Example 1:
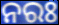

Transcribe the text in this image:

ନରଃ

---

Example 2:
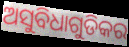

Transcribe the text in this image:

ଅସୁବିଧାଗୁଡିକର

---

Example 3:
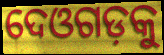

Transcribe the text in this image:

ଦେଓଗଡ଼କୁ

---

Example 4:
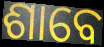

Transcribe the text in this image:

ଶାବେ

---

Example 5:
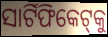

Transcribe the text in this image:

ସାର୍ଟିଫିକେଟ୍‌କୁ